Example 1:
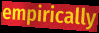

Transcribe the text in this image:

empirically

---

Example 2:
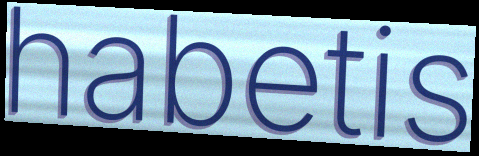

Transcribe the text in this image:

habetis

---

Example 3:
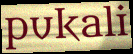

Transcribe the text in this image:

pukali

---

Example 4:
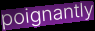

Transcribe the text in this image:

poignantly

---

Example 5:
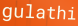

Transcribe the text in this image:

gulathi